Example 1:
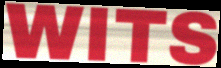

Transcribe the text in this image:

WITS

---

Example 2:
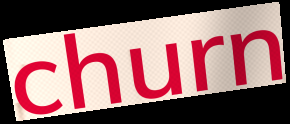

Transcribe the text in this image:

churn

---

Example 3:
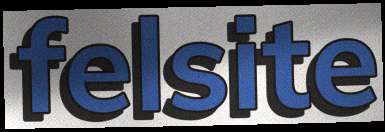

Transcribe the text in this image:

felsite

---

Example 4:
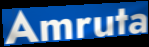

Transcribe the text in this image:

Amruta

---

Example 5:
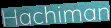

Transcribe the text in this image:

Hachiman